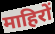
माहिरों